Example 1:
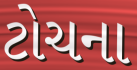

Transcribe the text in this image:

ટોચના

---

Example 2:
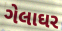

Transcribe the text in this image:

ગેલાઘર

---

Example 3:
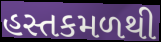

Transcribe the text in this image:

હસ્તકમળથી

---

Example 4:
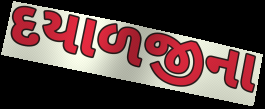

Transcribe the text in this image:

દયાળજીના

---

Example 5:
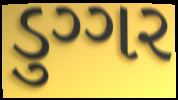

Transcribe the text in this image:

ડુગ્ગર